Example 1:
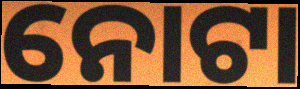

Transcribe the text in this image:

ନୋଟା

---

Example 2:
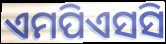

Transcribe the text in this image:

ଏମପିଏସସି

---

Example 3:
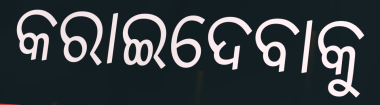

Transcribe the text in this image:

କରାଇଦେବାକୁ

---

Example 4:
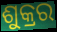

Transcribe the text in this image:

ଶୁକ୍ରର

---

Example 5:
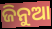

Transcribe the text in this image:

ଜିନୁଆ